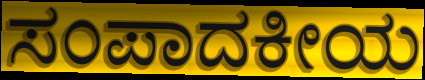
ಸಂಪಾದಕೀಯ